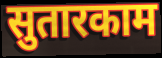
सुतारकाम